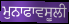
ਮੁਨਾਫਾਵਸੂਲੀ